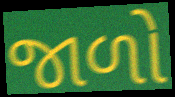
જાળો